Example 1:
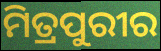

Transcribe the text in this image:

ମିତ୍ରପୁରୀର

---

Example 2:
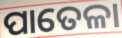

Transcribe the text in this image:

ପାତେଳା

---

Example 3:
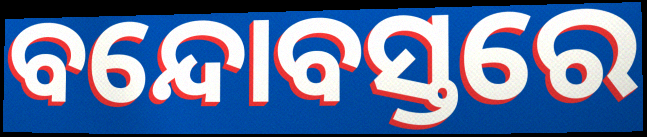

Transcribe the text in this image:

ବନ୍ଦୋବସ୍ତରେ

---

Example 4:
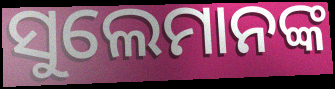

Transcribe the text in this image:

ସୁଲେମାନଙ୍କ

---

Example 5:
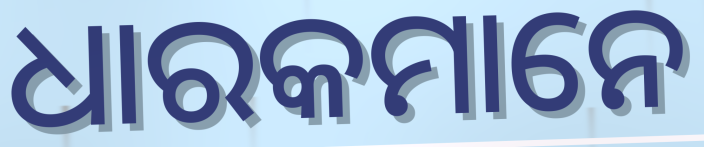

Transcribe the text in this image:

ଧାରକମାନେ